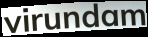
virundam